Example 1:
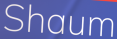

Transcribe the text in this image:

Shaum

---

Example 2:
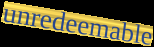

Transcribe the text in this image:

unredeemable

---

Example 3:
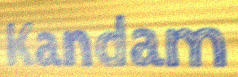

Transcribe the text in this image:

Kandam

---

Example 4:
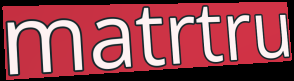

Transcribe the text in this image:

matrtru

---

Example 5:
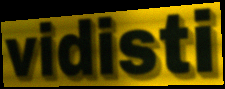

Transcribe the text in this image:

vidisti